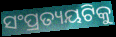
ସଂପ୍ରତ୍ୟୟଟିକୁ